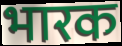
भारक